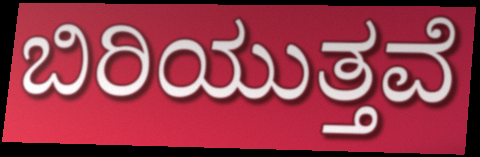
ಬಿರಿಯುತ್ತವೆ